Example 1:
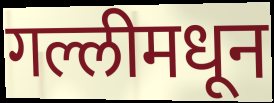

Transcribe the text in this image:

गल्लीमधून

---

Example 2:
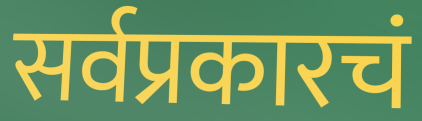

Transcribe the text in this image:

सर्वप्रकारचं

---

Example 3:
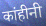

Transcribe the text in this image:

कांहीनी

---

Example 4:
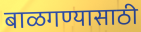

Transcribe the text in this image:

बाळगण्यासाठी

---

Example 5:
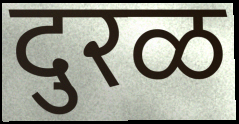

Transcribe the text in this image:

दुरळ